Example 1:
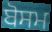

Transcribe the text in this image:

ਬੋਸਮ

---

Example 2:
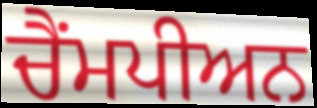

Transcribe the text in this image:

ਚੈਂਮਪੀਅਨ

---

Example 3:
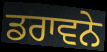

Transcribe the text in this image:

ਡਰਾਵਨੇ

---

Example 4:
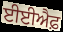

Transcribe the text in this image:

ਈਈਐਫ਼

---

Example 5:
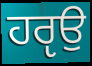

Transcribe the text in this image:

ਹਰੵਉ